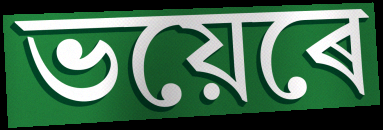
ভয়েৰে